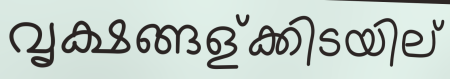
വൃക്ഷങ്ങള്ക്കിടയില്